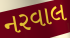
નરવાલ